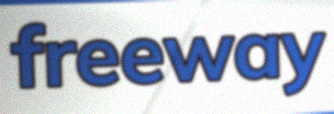
freeway